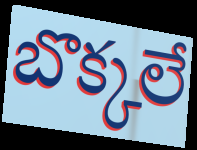
బొక్కలే